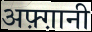
अफ़्ग़ानी